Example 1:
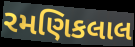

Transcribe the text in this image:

રમણિકલાલ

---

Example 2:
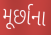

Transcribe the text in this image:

મૂર્છાના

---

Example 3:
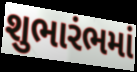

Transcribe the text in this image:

શુભારંભમાં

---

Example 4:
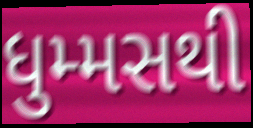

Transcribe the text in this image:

ધુમ્મસથી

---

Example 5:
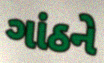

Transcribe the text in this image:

ગાંઠને